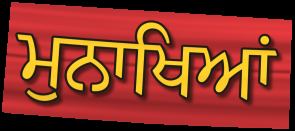
ਮੁਨਾਖਿਆਂ